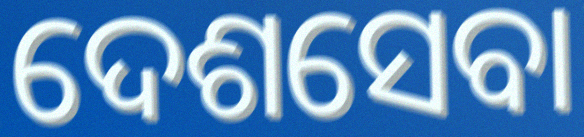
ଦେଶସେବା